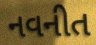
નવનીત